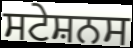
ਸਟੇਸ਼ਨਸ